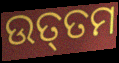
ଉତ୍‌ତମ